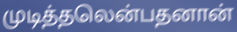
முடித்தலென்பதனான்